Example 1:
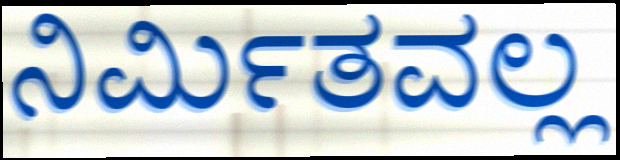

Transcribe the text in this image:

ನಿರ್ಮಿತವಲ್ಲ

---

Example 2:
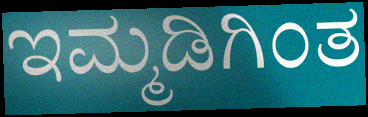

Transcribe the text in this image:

ಇಮ್ಮಡಿಗಿಂತ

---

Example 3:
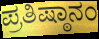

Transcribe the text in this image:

ಪ್ರತಿಷ್ಠಾನಂ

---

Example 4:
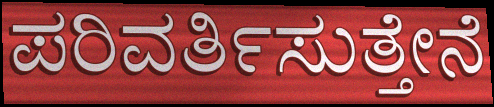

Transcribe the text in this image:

ಪರಿವರ್ತಿಸುತ್ತೇನೆ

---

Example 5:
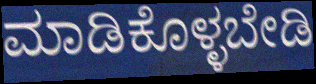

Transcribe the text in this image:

ಮಾಡಿಕೊಳ್ಳಬೇಡಿ